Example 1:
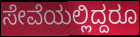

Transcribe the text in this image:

ಸೇವೆಯಲ್ಲಿದ್ದರೂ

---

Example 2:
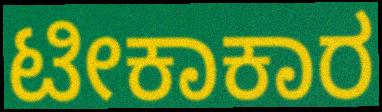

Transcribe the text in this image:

ಟೀಕಾಕಾರ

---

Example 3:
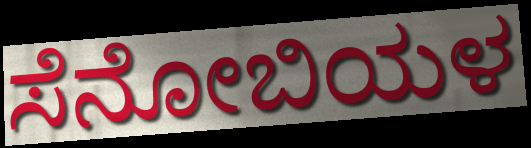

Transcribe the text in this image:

ಸೆನೋಬಿಯಳ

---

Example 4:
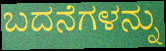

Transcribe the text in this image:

ಬದನೆಗಳನ್ನು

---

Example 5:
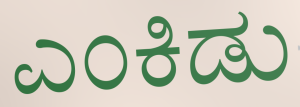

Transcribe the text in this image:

ಎಂಕಿಡು